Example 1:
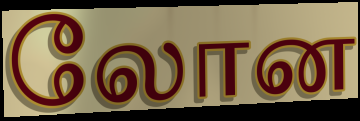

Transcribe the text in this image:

லோன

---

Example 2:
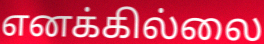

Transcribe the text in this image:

எனக்கில்லை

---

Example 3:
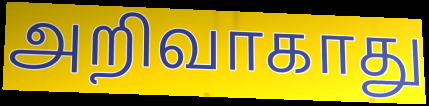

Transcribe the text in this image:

அறிவாகாது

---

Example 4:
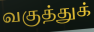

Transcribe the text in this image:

வகுத்துக்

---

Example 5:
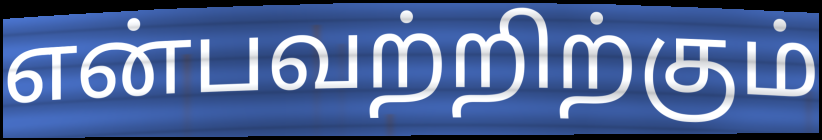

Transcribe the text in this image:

என்பவற்றிற்கும்